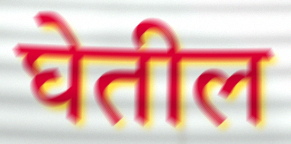
घेतील